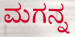
ಮಗನ್ನ